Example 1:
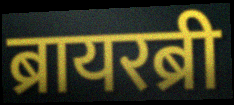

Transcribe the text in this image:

ब्रायरब्री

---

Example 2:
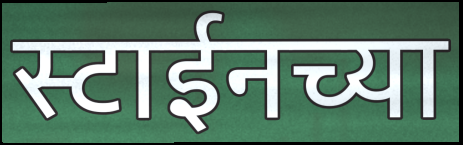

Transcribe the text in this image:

स्टाईनच्या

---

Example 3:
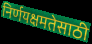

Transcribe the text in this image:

निर्णयक्षमतेसाठी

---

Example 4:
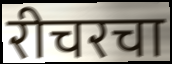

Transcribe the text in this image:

रीचरचा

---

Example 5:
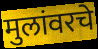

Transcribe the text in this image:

मुलांवरचे